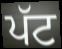
ਪੱਟ